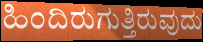
ಹಿಂದಿರುಗುತ್ತಿರುವುದು